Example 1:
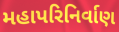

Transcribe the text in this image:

મહાપરિનિર્વાણ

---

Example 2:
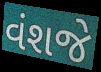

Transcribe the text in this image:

વંશજે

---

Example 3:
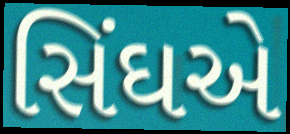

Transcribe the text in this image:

સિંઘએ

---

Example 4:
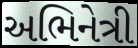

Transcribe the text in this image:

અભિનેત્રી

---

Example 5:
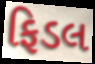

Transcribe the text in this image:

ફિડલ